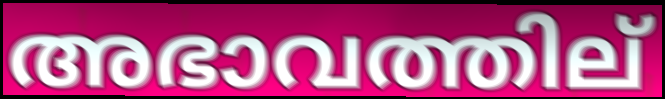
അഭാവത്തില്